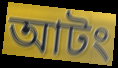
আটং